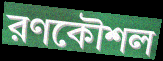
রণকৌশল